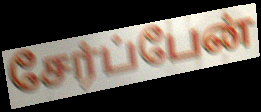
சேர்ப்பேன்